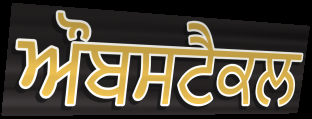
ਔਬਸਟੈਕਲ